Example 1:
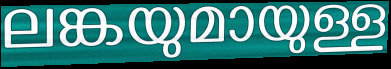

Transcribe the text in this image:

ലങ്കയുമായുള്ള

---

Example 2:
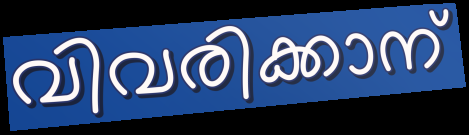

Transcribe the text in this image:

വിവരിക്കാന്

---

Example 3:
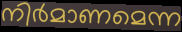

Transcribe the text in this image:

നിർമാണമെന്ന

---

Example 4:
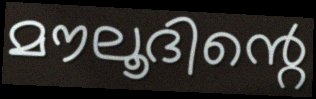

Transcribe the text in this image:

മൗലൂദിന്റെ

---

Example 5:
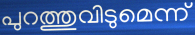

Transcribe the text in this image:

പുറത്തുവിടുമെന്ന്